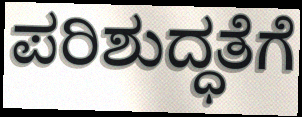
ಪರಿಶುದ್ಧತೆಗೆ